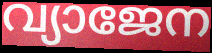
വ്യാജേന